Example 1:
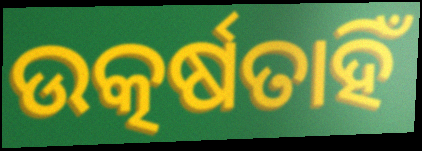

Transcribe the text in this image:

ଉତ୍କର୍ଷତାହିଁ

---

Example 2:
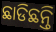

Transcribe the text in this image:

ଛାଡିଛନ୍ତି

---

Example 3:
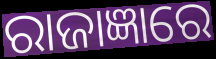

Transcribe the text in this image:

ରାଜାଜ୍ଞାରେ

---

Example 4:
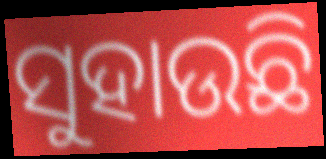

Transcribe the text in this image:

ସୁହାଉଛି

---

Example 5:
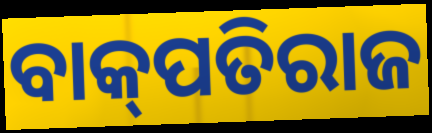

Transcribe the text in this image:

ବାକ୍‌ପତିରାଜ